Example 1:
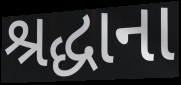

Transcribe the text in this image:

શ્રદ્ધાના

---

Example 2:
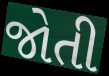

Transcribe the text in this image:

જોતી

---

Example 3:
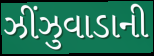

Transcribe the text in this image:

ઝીંઝુવાડાની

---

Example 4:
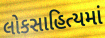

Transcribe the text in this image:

લોકસાહિત્યમાં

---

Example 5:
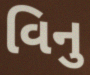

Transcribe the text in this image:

વિનુ